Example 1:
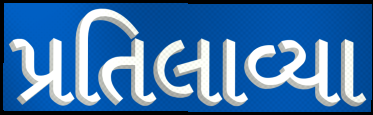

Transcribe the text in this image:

પ્રતિલાવ્યા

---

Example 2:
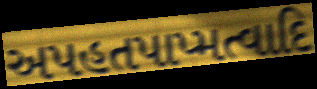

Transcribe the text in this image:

અપહતપાપ્મત્વાદિ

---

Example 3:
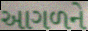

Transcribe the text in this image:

આગળને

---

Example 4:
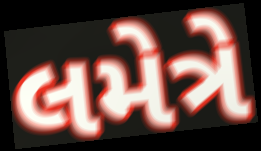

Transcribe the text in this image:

લમેત્રે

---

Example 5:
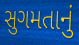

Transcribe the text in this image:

સુગમતાનું